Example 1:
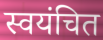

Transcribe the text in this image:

स्वयंचित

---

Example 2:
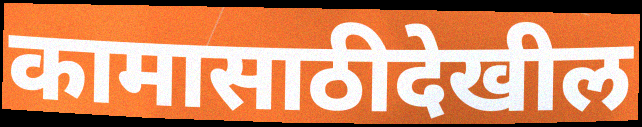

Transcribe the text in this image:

कामासाठीदेखील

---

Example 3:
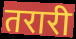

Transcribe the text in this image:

तरारी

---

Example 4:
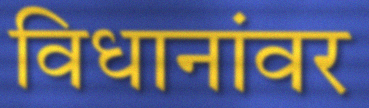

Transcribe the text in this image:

विधानांवर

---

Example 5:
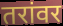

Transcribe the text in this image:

तरांवर